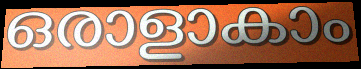
ഒരാളാകാം